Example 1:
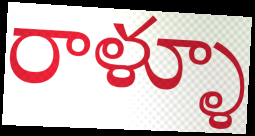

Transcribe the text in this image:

రాళ్ళూ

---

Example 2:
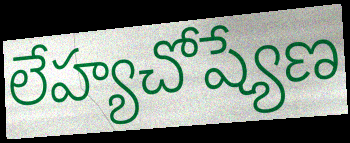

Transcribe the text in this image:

లేహ్యచోష్యేణ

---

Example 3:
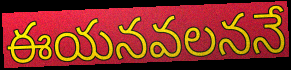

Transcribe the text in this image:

ఈయనవలననే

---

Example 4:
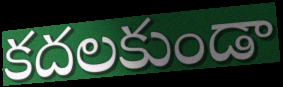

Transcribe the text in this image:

కదలకుండా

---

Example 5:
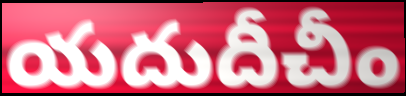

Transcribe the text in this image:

యదుదీచీం